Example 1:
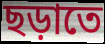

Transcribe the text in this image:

ছড়াতে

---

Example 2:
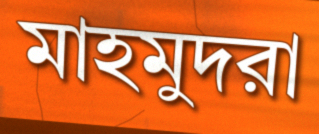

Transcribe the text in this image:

মাহমুদরা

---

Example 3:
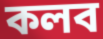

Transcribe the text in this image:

কলব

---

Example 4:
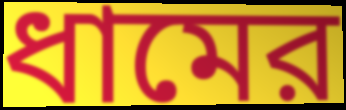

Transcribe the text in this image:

ধামের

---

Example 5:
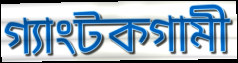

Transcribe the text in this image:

গ্যাংটকগামী